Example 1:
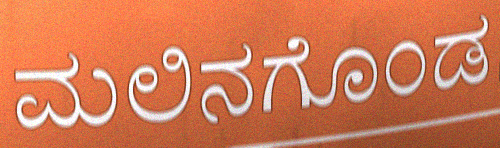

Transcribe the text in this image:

ಮಲಿನಗೊಂಡ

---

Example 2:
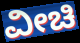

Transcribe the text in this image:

ವೀಚಿ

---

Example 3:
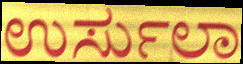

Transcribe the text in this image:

ಉರ್ಸುಲಾ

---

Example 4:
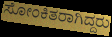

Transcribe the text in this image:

ಸೋಂಕಿತರಾಗಿದ್ದರು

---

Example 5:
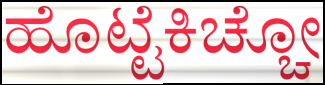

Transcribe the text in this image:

ಹೊಟ್ಟೆಕಿಚ್ಚೋ